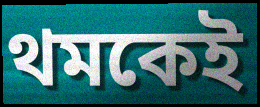
থমকেই